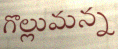
గొల్లుమన్న